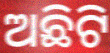
ଅଛିଟି